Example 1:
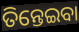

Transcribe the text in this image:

ତିନ୍ତେଇବା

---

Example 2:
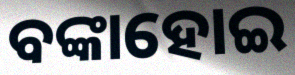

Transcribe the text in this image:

ବଙ୍କାହୋଇ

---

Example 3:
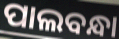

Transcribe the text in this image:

ପାଲବନ୍ଧା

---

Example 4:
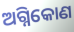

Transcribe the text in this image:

ଅଗ୍ନିକୋଣ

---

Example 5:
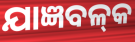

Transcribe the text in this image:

ଯାଜ୍ଞବଳ୍‍କ